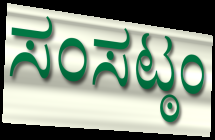
ಸಂಸಟ್ಠಂ